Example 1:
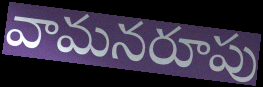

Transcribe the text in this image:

వామనరూపు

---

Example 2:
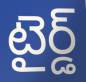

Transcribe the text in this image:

టైర్డ్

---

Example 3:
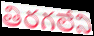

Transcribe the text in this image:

తిరగలేని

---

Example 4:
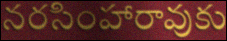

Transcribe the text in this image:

నరసింహారావుకు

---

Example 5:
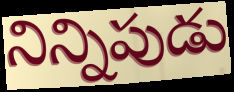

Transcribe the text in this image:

నిన్నిపుడు